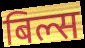
बिल्स